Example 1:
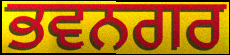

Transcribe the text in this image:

ਭਵਨਗਰ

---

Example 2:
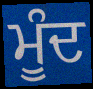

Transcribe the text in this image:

ਮੂੰਦ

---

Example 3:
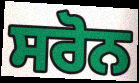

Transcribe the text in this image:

ਸਰੋਨ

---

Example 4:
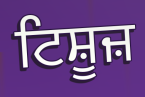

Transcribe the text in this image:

ਟਿਸ਼ੂਜ਼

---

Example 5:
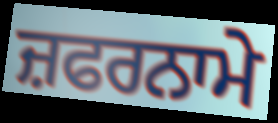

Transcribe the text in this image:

ਜ਼ਫਰਨਾਮੇ